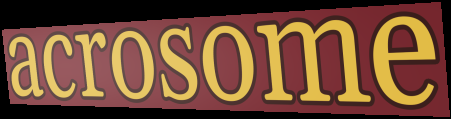
acrosome